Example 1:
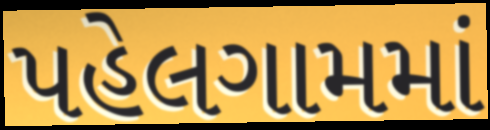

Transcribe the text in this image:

પહેલગામમાં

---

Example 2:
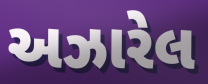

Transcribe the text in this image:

અઝારેલ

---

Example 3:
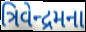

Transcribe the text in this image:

ત્રિવેન્દ્રમના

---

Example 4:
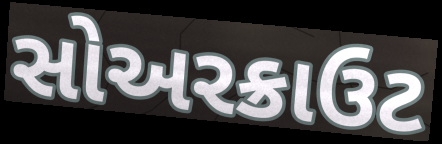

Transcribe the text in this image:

સોઅરક્રાઉટ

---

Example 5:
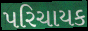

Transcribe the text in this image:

પરિચાયક